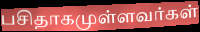
பசிதாகமுள்ளவர்கள்